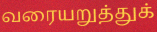
வரையறுத்துக்